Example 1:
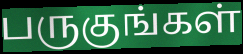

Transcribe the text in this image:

பருகுங்கள்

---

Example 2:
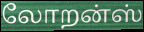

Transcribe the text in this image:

லோறன்ஸ்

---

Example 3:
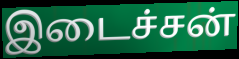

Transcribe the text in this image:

இடைச்சன்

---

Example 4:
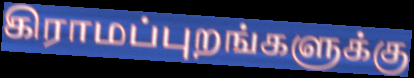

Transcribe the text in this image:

கிராமப்புறங்களுக்கு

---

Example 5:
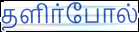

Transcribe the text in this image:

தளிர்போல்